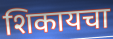
शिकायचा